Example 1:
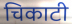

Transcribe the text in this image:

चिकाटी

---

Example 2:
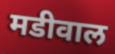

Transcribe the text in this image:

मडीवाल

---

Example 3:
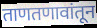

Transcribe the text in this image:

ताणतणावांतून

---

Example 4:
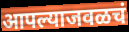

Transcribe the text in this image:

आपल्याजवळचं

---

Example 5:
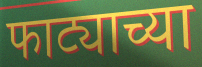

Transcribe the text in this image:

फाट्याच्या